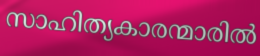
സാഹിത്യകാരന്മാരിൽ